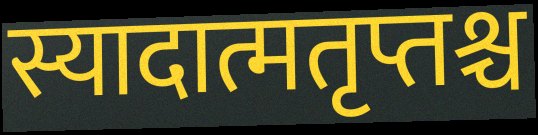
स्यादात्मतृप्तश्च